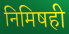
निमिषही